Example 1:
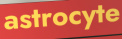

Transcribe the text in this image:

astrocyte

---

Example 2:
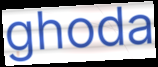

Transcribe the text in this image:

ghoda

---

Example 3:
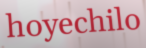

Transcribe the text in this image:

hoyechilo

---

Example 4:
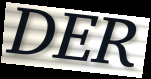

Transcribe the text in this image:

DER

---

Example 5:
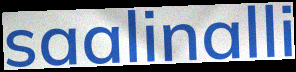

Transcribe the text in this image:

saalinalli